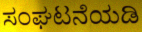
ಸಂಘಟನೆಯಡಿ